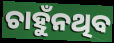
ଚାହୁଁନଥିବ